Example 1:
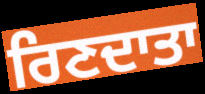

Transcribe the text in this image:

ਰਿਣਦਾਤਾ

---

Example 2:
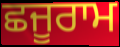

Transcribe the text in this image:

ਛਜੂਰਾਮ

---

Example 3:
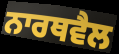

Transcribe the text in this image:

ਨਾਰਥਵੈਲ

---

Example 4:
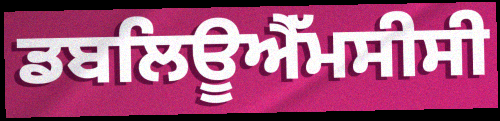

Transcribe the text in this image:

ਡਬਲਿਊਐੱਮਸੀਸੀ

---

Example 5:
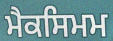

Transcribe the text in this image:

ਮੈਕਸਿਮਮ